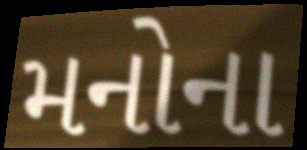
મનોના